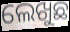
ଲେଖୁଛ